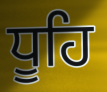
ਧੂਹਿ